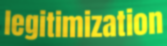
legitimization